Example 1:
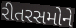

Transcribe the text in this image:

રીતરસમોને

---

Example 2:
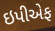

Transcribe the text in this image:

ઇપીએફ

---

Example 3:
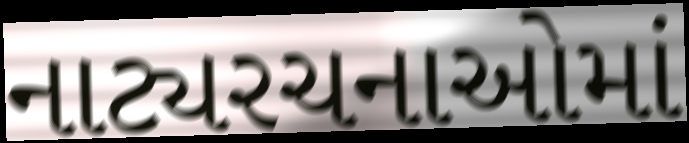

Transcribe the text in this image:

નાટ્યરચનાઓમાં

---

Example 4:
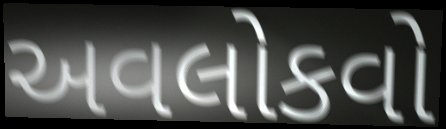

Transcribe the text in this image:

અવલોકવો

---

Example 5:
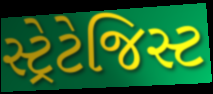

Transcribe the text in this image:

સ્ટ્રેટેજિસ્ટ